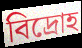
বিদ্রোহ